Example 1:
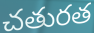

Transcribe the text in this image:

చతురత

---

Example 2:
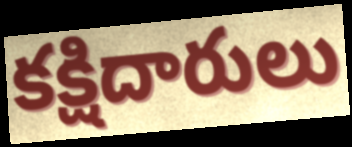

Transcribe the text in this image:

కక్షిదారులు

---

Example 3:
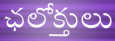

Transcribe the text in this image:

ఛలోక్తులు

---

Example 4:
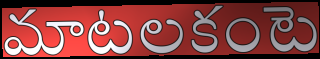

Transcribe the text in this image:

మాటలకంటె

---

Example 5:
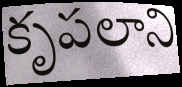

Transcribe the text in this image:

కృపలాని